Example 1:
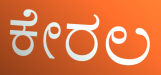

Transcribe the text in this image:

ಕೇರಲ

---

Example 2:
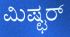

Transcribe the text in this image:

ಮಿಷ್ಟರ್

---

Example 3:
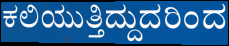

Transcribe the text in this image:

ಕಲಿಯುತ್ತಿದ್ದುದರಿಂದ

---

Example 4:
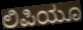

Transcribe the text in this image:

ಲಿಪಿಯೂ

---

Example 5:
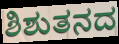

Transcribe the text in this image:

ಶಿಶುತನದ